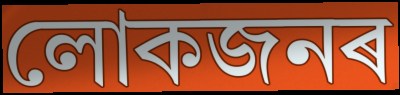
লোকজনৰ